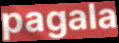
pagala